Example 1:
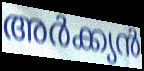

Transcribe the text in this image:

അർക്ക്യൻ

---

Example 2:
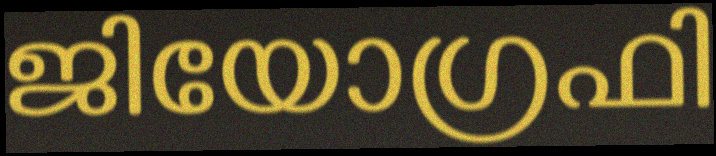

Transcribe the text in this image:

ജിയോഗ്രഫി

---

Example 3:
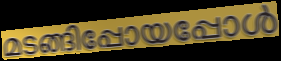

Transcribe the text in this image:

മടങ്ങിപ്പോയപ്പോൾ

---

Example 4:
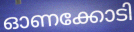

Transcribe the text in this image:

ഓണക്കോടി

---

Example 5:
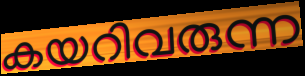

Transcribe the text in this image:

കയറിവരുന്ന